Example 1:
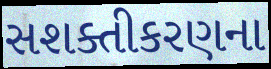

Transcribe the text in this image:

સશક્તીકરણના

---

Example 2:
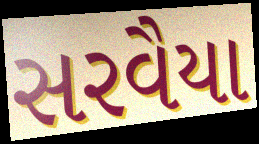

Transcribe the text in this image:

સરવૈયા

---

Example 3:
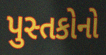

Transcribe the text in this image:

પુસ્તકોનો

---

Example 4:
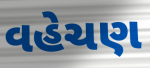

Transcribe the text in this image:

વહેચણ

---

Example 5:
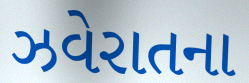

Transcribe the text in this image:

ઝવેરાતના